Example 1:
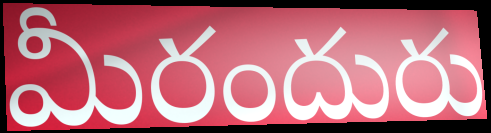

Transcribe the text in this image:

మీరందురు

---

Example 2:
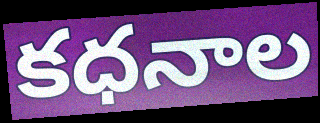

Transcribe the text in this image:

కధనాల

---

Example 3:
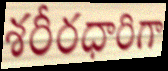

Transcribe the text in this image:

శరీరధారిగా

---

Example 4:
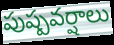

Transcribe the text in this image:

పుష్పవర్షాలు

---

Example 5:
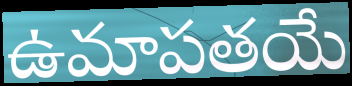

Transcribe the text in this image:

ఉమాపతయే